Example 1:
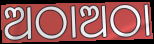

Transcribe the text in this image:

ଅଠାଅଠା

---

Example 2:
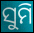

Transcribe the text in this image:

ସୁମି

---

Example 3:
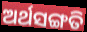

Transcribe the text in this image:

ଅର୍ଥସଙ୍ଗତି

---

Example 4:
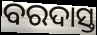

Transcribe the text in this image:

ବରଦାସ୍ତ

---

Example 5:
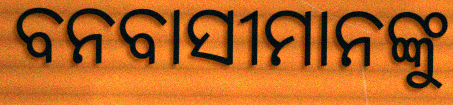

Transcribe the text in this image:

ବନବାସୀମାନଙ୍କୁ